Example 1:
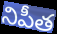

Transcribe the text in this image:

నిపీత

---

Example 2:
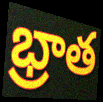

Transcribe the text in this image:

భ్రాత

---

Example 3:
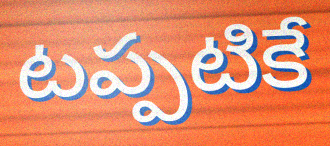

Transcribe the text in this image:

టప్పటికే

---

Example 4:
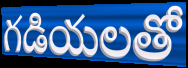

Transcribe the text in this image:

గడియలతో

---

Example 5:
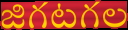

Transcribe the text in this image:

జిగటగల